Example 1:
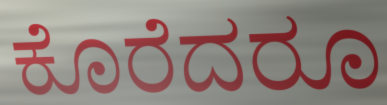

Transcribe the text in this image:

ಕೊರೆದರೂ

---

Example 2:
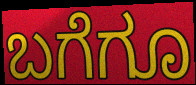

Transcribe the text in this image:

ಬಗೆಗೂ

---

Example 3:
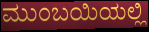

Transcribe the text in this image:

ಮುಂಬಯಿಯಲ್ಲಿ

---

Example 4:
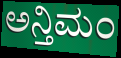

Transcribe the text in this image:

ಅನ್ತಿಮಂ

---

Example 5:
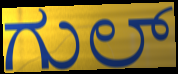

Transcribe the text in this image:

ಗುಲ್